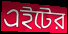
এইটের